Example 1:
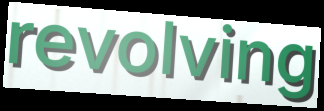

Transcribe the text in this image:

revolving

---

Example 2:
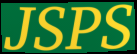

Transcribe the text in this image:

JSPS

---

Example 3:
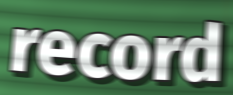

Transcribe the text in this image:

record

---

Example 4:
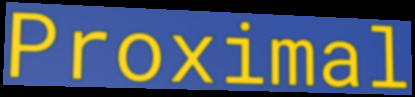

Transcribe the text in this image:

Proximal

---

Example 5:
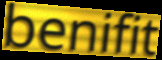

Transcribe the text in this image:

benifit